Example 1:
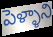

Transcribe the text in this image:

పెళ్ళాని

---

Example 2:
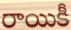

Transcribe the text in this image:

రాయికీ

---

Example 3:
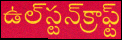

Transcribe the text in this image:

ఉల్‌స్టన్‌క్రాఫ్ట్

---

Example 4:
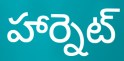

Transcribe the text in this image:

హార్నెట్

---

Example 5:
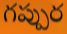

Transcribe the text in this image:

గప్పుర